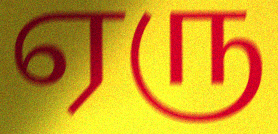
ஏரு